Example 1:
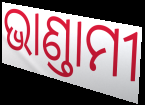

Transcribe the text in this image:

ଭାଣ୍ଡାମୀ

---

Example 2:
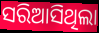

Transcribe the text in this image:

ସରିଆସିଥିଲା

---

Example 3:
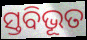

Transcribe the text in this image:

ସ୍ତବିଭୂତ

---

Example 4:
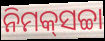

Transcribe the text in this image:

ନିମକ୍‍ସଚ୍ଚା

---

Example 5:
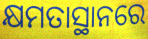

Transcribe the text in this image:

କ୍ଷମତାସ୍ଥାନରେ